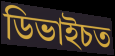
ডিভাইচত